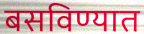
बसविण्यात